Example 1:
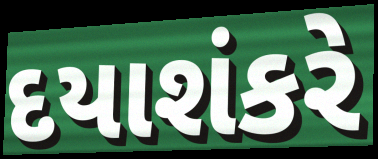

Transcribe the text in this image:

દયાશંકરે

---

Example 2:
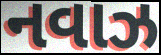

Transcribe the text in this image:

નવાઝ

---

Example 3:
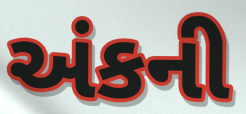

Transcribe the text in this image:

અંકની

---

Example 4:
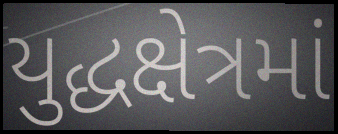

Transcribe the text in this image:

યુદ્ધક્ષેત્રમાં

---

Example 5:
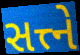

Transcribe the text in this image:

સત્ત્ને